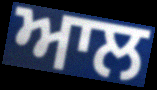
ਆਲ